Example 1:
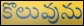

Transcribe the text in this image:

కొలువును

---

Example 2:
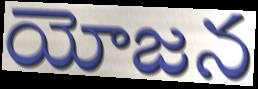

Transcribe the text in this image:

యోజన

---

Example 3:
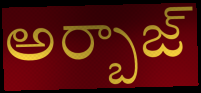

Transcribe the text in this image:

అర్బాజ్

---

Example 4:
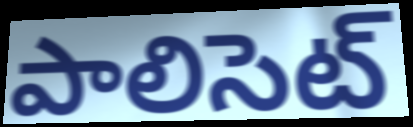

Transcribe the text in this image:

పాలిసెట్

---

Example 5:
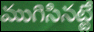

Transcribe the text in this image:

ముగిసినట్టే